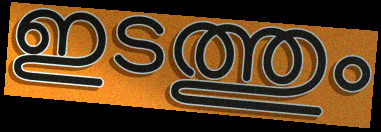
ഇടത്തും